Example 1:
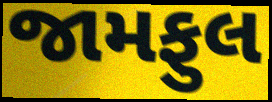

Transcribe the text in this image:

જામફુલ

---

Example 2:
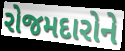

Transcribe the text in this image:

રોજમદારોને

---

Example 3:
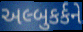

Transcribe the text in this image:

અલ્બુકર્કને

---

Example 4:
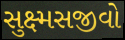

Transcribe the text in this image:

સુક્ષ્મસજીવો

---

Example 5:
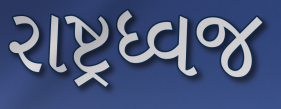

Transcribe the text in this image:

રાષ્ટ્રધ્વજ